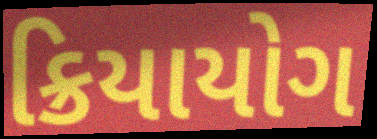
ક્રિયાયોગ